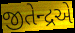
જીતેન્દ્રએ